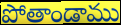
పోతాండాము